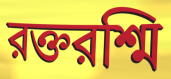
রক্তরশ্মি